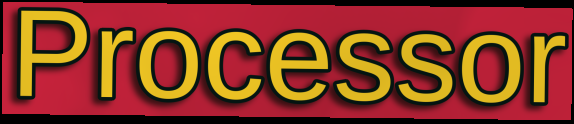
Processor